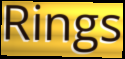
Rings